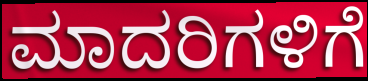
ಮಾದರಿಗಳಿಗೆ